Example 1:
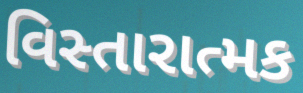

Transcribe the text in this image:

વિસ્તારાત્મક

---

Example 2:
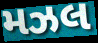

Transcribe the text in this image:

મઝલ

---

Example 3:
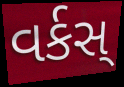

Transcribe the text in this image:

વર્કસ્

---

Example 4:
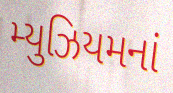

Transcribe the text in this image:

મ્યુઝિયમનાં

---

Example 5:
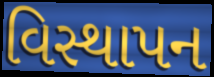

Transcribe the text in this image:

વિસ્થાપન